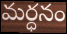
మర్ధనం